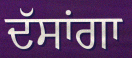
ਦੱਸਾਂਗਾ